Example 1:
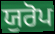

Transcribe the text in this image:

ਯੁਰੋਪ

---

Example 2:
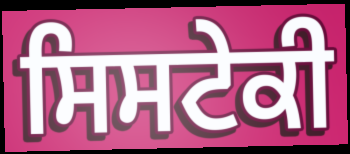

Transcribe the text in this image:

ਸਿਸਟੇਕੀ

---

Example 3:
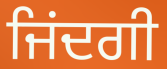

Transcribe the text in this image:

ਜਿਂਦਗੀ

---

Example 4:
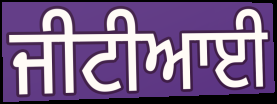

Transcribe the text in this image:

ਜੀਟੀਆਈ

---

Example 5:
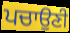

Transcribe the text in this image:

ਪਚਾਉਣੀ